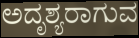
ಅದೃಶ್ಯರಾಗುವ